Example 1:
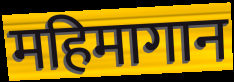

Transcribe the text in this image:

महिमागान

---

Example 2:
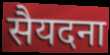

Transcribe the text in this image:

सैयदना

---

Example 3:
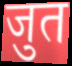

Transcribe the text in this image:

जुत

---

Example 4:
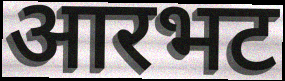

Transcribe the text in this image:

आरभट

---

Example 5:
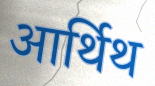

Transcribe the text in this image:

आर्थिथ